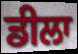
ਡੀਲਾ